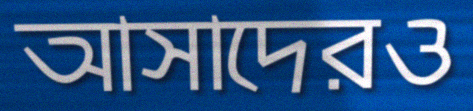
আসাদেরও